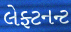
લેફ્ટનન્ટ